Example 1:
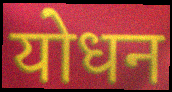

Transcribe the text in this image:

योधन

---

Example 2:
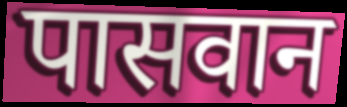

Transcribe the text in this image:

पासवान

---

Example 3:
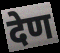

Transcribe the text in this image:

देण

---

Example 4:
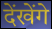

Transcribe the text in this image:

देंखेंगे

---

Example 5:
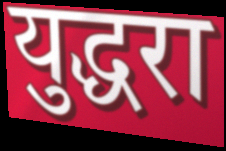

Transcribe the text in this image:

युद्धरा